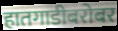
हातगाडीबरोबर